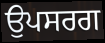
ਉਪਸਰਗ